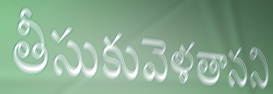
తీసుకువెళతానని